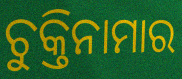
ଚୁକ୍ତିନାମାର